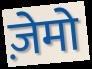
ज़ेमो